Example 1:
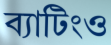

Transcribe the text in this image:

ব্যাটিংও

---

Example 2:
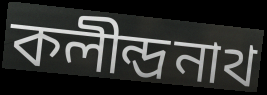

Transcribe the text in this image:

কলীন্দ্রনাথ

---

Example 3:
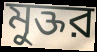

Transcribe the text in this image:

মুক্তর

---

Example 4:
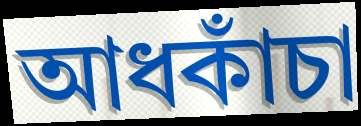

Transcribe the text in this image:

আধকাঁচা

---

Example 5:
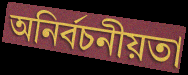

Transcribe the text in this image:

অনির্বচনীয়তা